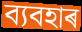
ব্যবহাৰ